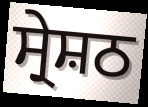
ਸ੍ਰੇਸ਼ਠ